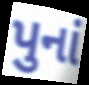
પુનાં